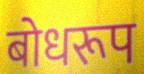
बोधरूप